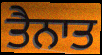
ਤੈਨਾਤ